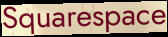
Squarespace